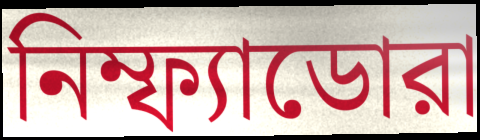
নিম্ফ্যাডোরা